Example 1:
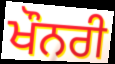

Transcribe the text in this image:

ਖੌਨਰੀ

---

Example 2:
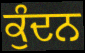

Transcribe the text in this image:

ਕੁੰਦਨ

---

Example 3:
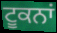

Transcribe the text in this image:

ਟੂਕਨਾਂ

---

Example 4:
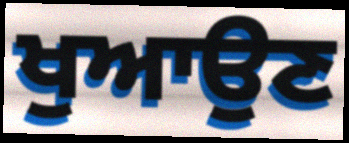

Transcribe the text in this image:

ਖੁਆਉਣ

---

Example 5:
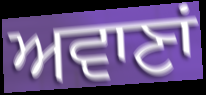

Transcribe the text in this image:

ਅਵਾਣਾਂ